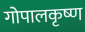
गोपालकृष्‍ण